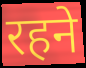
रहने